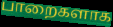
பாறைகளாக